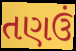
તણઉં